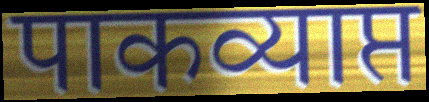
पाकव्याप्त